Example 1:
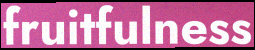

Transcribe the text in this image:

fruitfulness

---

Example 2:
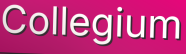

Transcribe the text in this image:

Collegium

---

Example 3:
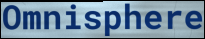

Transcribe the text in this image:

Omnisphere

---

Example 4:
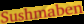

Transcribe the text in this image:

Sushmaben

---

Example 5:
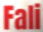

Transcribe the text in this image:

Fali